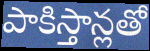
పాకిస్తాన్లతో